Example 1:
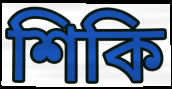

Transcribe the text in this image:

শিকি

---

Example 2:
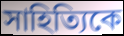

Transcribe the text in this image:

সাহিত্যিকে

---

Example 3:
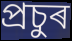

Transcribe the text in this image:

প্ৰচুৰ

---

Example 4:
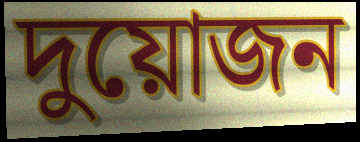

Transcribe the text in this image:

দুয়োজন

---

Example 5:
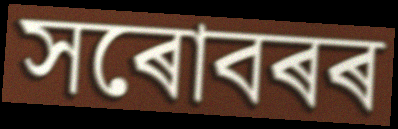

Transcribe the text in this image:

সৰোবৰৰ